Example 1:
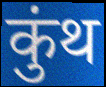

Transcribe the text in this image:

कुंथ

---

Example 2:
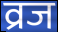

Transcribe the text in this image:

व्रज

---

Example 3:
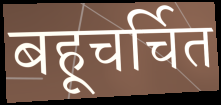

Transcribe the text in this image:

बहूचर्चित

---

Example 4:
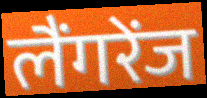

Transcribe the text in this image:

लैंगरेंज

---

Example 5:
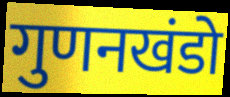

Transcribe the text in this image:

गुणनखंडो